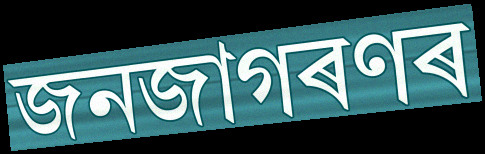
জনজাগৰণৰ